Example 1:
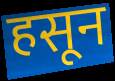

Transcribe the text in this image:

हसून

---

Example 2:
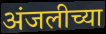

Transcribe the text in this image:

अंजलीच्या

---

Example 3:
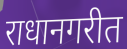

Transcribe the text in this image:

राधानगरीत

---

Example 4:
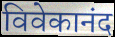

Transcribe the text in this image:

विवेकानंद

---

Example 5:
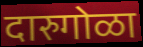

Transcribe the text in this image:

दारुगोळा